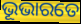
ଭୂଭାରତେ